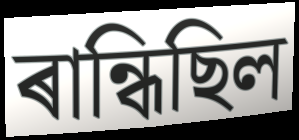
ৰান্ধিছিল